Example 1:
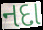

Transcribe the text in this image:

નદા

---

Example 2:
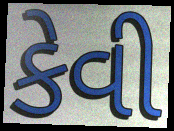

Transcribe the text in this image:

કેવી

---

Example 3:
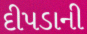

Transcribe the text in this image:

દીપડાની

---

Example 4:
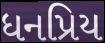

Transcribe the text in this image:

ધનપ્રિય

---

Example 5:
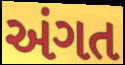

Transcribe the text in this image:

અંગત